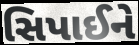
સિપાઈને